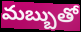
మబ్బుతో